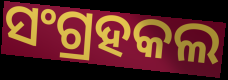
ସଂଗ୍ରହକଲ